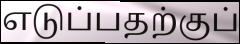
எடுப்பதற்குப்